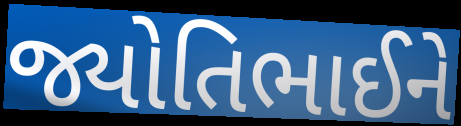
જ્યોતિભાઈને